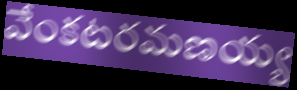
వేంకటరమణయ్య